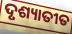
ଦୃଶ୍ୟାତୀତ